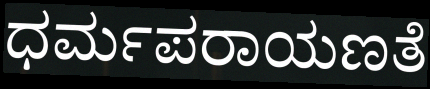
ಧರ್ಮಪರಾಯಣತೆ